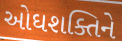
ઓઘશક્તિને